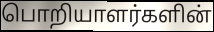
பொறியாளர்களின்